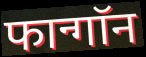
फान्गॉन